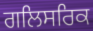
ਗਲਿਸਰਿਕ